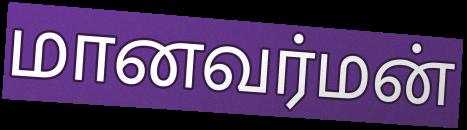
மானவர்மன்